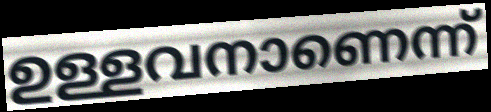
ഉള്ളവനാണെന്ന്